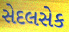
સેદલસેક